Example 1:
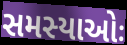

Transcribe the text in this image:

સમસ્યાઓઃ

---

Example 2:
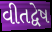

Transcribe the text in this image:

વીતદ્વેષ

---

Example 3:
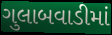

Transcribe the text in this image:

ગુલાબવાડીમાં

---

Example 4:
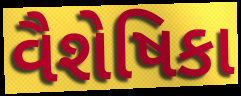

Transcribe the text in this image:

વૈશેષિકા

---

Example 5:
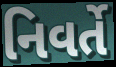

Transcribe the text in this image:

નિવર્તે